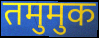
तमुमुक